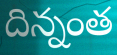
దిన్నంత